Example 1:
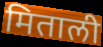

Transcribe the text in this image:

मिताली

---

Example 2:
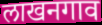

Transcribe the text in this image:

लाखनगाव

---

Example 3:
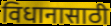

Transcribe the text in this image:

विधानासाठी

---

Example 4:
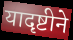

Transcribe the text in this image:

यादृष्टीने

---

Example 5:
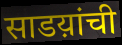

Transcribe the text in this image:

साडय़ांची